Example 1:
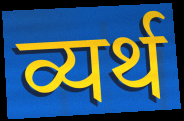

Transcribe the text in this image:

व्यर्थ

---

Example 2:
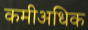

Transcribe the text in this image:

कमीअधिक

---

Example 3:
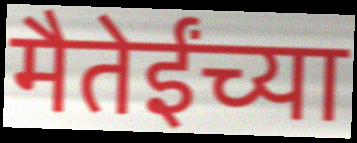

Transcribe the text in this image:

मैतेईंच्या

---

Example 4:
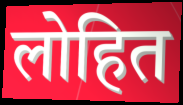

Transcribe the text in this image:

लोहित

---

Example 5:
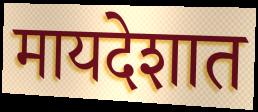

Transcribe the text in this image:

मायदेशात